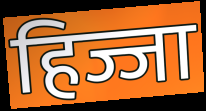
हिज्जा